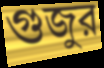
গুজুর